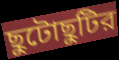
ছুটোছুটির